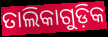
ତାଲିକାଗୁଡ଼ିକ